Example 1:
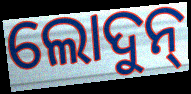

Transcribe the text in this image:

ଲୋଦୁନ୍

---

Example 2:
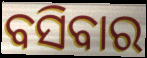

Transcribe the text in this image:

ବସିବାର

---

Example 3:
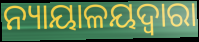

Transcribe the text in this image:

ନ୍ୟାୟାଳୟଦ୍ୱାରା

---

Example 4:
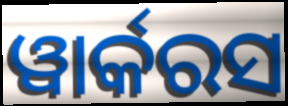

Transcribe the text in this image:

ୱାର୍କରସ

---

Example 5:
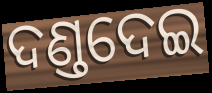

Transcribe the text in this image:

ଦଣ୍ଡଦେଇ